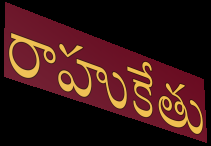
రాహుకేతు